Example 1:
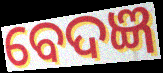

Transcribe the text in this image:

ବେଦଜ୍ଞ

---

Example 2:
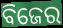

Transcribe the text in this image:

ବିଜେର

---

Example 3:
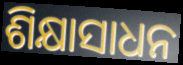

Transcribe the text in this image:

ଶିକ୍ଷାସାଧନ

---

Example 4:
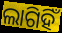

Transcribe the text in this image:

ଲାଗିହିଁ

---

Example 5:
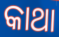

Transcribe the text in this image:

କାଥା